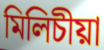
মিলিচীয়া